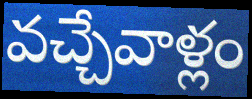
వచ్చేవాళ్లం